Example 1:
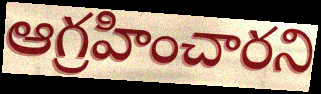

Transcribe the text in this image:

ఆగ్రహించారని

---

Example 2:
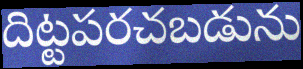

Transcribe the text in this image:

దిట్టపరచబడును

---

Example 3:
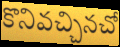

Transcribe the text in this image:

కొనివచ్చినచో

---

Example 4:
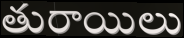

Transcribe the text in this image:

తురాయిలు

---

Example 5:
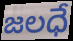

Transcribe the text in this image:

జలధే